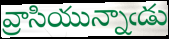
వ్రాసియున్నాఁడు